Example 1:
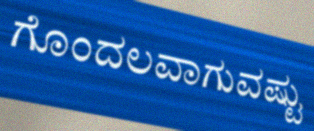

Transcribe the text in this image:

ಗೊಂದಲವಾಗುವಷ್ಟು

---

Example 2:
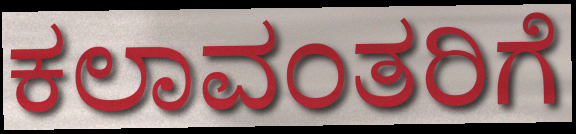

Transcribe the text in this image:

ಕಲಾವಂತರಿಗೆ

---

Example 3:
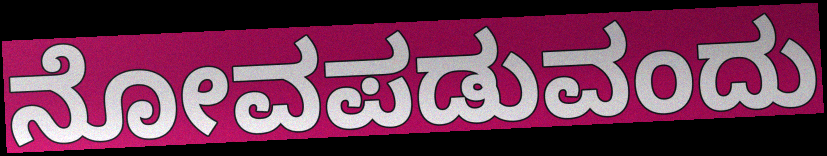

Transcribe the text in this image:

ನೋವಪಡುವಂದು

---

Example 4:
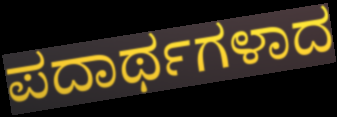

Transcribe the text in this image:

ಪದಾರ್ಥಗಳಾದ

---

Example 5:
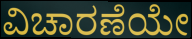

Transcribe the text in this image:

ವಿಚಾರಣೆಯೇ